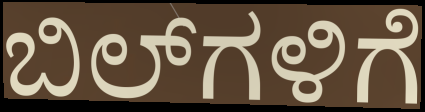
ಬಿಲ್‌ಗಳಿಗೆ